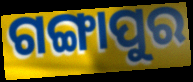
ଗଙ୍ଗାପୁର